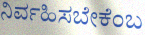
ನಿರ್ವಹಿಸಬೇಕೆಂಬ